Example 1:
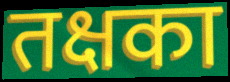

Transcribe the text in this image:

तक्षका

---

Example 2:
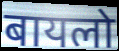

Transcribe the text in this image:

बायलो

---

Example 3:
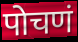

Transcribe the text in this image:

पोचणं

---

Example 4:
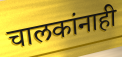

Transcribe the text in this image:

चालकांनाही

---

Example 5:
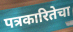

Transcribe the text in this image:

पत्रकारितेचा